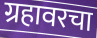
ग्रहावरचा